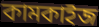
কামকাইজ